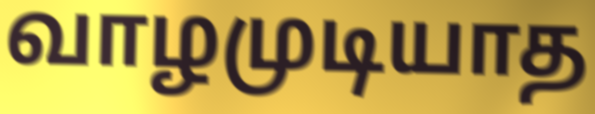
வாழமுடியாத